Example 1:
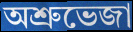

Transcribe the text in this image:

অশ্রুভেজা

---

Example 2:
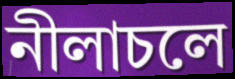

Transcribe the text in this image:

নীলাচলে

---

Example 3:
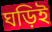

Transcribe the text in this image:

ঘড়িই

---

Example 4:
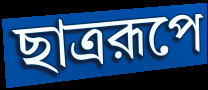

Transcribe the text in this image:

ছাত্ররূপে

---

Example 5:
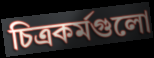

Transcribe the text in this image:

চিত্রকর্মগুলো